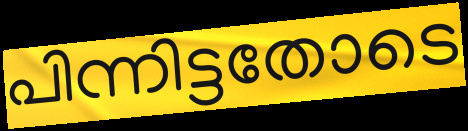
പിന്നിട്ടതോടെ